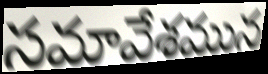
సమావేశమున